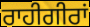
ਰਾਹੀਗੀਰਾਂ